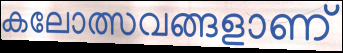
കലോത്സവങ്ങളാണ്